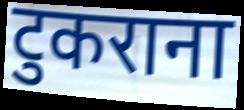
टुकराना